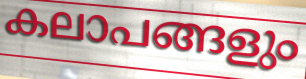
കലാപങ്ങളും